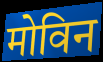
मोविन